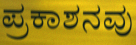
ಪ್ರಕಾಶನವು